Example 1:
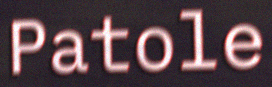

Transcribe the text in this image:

Patole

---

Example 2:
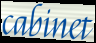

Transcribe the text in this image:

cabinet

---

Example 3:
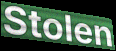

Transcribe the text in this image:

Stolen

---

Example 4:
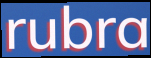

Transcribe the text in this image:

rubra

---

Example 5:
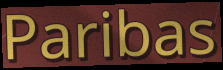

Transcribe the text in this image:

Paribas